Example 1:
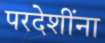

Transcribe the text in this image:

परदेशींना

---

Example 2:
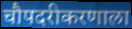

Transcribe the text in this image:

चौपदरीकरणाला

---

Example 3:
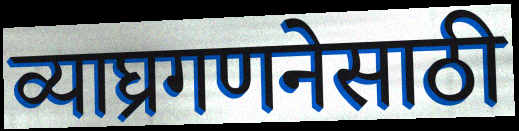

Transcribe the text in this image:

व्याघ्रगणनेसाठी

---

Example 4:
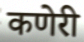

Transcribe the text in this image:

कणेरी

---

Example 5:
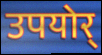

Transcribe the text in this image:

उपयोर्